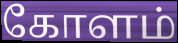
கோளம்